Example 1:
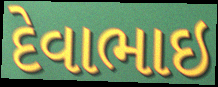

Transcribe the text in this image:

દેવાભાઇ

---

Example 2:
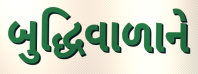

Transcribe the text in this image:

બુદ્ધિવાળાને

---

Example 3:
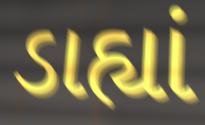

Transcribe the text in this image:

ડાહ્યાં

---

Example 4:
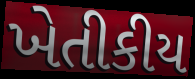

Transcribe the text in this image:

ખેતીકીય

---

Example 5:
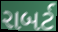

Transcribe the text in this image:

રાબર્ટ